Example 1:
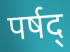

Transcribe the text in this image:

पर्षद्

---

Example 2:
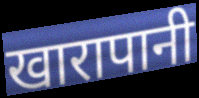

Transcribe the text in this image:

खारापानी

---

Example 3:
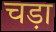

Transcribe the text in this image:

चड़ा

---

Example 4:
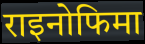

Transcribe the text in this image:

राइनोफिमा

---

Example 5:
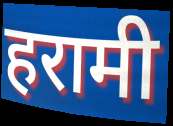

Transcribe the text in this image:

हरामी